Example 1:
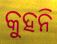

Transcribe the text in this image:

କୁହନି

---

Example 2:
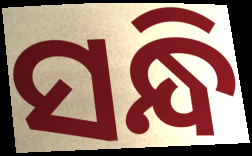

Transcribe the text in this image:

ସନ୍ଧି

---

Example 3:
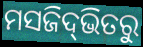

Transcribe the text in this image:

ମସଜିଦ୍‌ଭିତରୁ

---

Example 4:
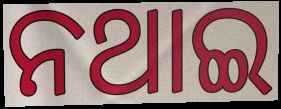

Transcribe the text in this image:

ନଥାଇ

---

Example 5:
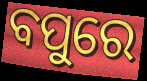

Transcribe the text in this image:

ବପୁରେ